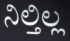
ನಿಲ್ತಿಲ್ಲ